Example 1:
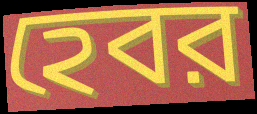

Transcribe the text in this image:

হেবর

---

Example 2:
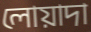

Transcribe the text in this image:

লোয়াদা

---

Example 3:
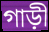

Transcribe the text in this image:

গাড়ী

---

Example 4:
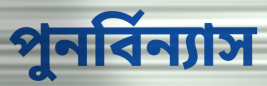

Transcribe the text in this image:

পুনর্বিন্যাস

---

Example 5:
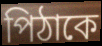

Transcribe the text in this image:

পিঠাকে